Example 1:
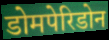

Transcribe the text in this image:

डोमपेरिडोन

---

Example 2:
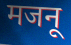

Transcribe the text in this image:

मजनू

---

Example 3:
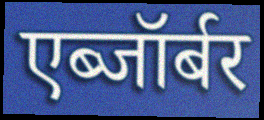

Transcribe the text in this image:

एब्जॉर्बर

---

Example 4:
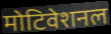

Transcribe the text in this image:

मोटिवेशनल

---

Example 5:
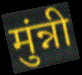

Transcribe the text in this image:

मुंन्नी